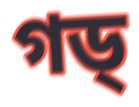
গড্